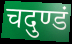
चदुण्डं